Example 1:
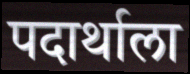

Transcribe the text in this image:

पदार्थाला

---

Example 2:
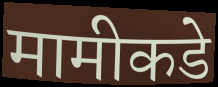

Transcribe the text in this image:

मामीकडे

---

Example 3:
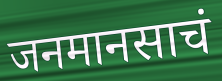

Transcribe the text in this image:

जनमानसाचं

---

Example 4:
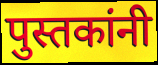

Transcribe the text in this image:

पुस्तकांनी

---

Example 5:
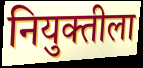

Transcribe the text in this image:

नियुक्तीला